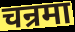
चन्रमा